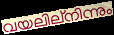
വയലില്നിന്നും